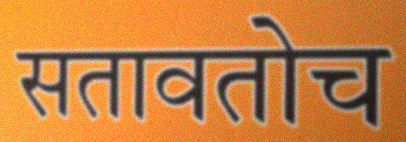
सतावतोच